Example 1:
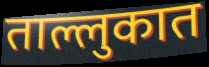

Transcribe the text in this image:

ताल्लुकात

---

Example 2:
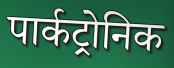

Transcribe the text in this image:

पार्कट्रोनिक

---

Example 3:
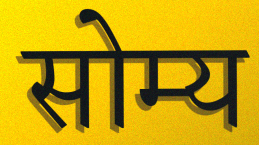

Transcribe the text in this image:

सोम्य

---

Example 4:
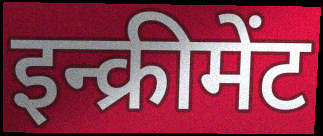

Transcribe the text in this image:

इन्क्रीमेंट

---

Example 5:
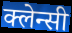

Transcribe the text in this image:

क्लेन्सी